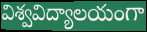
విశ్వవిద్యాలయంగా